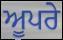
ਅੂਪਰੇ